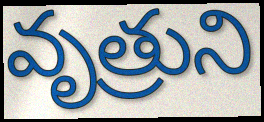
వృత్రుని